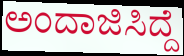
ಅಂದಾಜಿಸಿದ್ದೆ